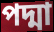
পদ্মা